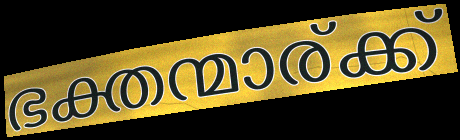
ഭക്തന്മാര്ക്ക്